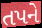
તપને